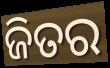
ଜିତର